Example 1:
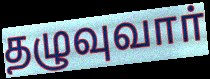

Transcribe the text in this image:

தழுவுவார்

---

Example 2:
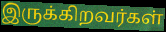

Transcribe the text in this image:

இருக்கிறவர்கள்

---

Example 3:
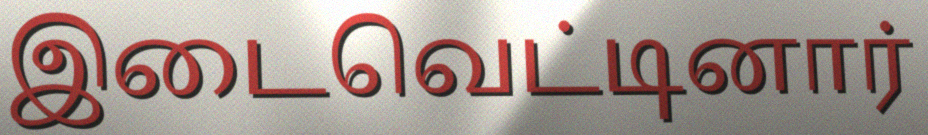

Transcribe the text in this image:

இடைவெட்டினார்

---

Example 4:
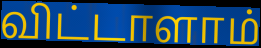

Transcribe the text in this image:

விட்டாளாம்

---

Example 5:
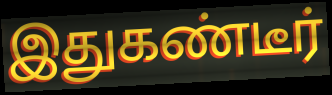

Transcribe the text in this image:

இதுகண்டீர்